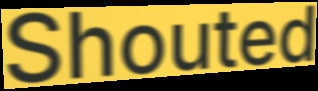
Shouted